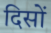
दिसों